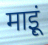
माइूं